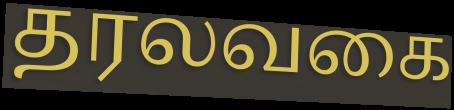
தரலவகை